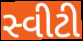
સ્વીટી